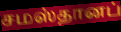
சமஸ்தானப்